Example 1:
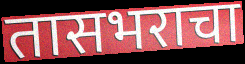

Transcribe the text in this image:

तासभराचा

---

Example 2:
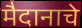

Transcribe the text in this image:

मैदानाचे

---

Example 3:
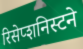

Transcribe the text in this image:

रिसेप्शनिस्टने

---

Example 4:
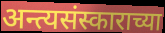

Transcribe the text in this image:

अन्त्यसंस्काराच्या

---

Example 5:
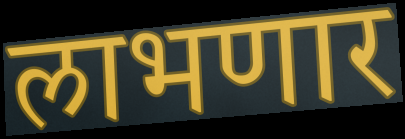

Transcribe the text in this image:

लाभणार